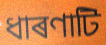
ধাৰণাটি